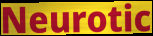
Neurotic